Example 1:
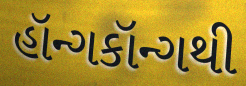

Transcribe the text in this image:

હૉન્ગકૉન્ગથી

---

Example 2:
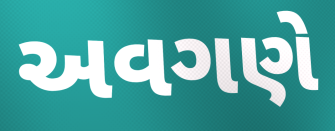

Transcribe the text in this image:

અવગણે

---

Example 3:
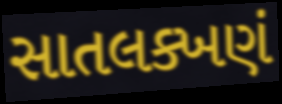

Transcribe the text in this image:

સાતલક્ખણં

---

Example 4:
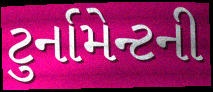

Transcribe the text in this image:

ટુર્નામેન્ટની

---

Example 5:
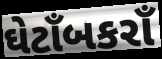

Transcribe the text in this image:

ઘેટાઁબકરાઁ